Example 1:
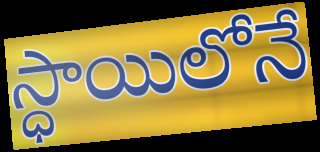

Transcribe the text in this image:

స్ధాయిలోనే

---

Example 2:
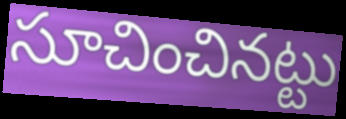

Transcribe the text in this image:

సూచించినట్టు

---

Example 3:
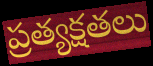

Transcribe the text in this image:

ప్రత్యక్షతలు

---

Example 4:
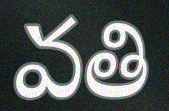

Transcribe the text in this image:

వతి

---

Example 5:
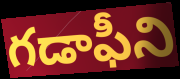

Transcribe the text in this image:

గడాఫీని